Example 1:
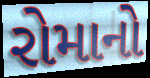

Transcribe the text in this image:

રોમાનો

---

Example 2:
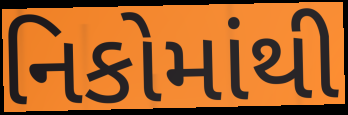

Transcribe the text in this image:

નિકોમાંથી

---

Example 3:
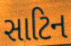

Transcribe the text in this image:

સાટિન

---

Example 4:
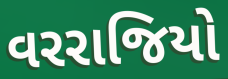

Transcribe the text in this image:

વરરાજિયો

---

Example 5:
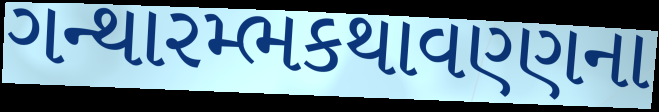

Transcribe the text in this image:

ગન્થારમ્ભકથાવણ્ણના